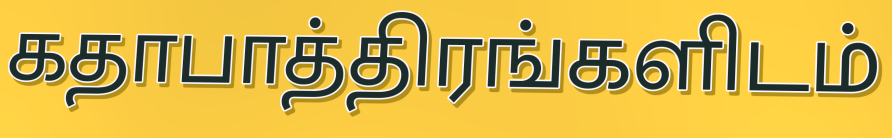
கதாபாத்திரங்களிடம்